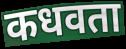
कधवता